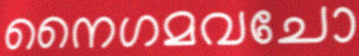
നൈഗമവചോ